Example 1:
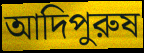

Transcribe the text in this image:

আদিপুরুষ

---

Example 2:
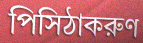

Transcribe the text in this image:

পিসিঠাকরুণ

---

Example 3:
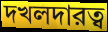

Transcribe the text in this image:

দখলদারত্ব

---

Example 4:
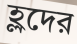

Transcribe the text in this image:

হ্লদের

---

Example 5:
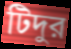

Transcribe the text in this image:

টিদুর